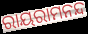
ରାୟରାମନନ୍ଦ